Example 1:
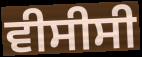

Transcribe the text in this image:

ਵੀਸੀਸੀ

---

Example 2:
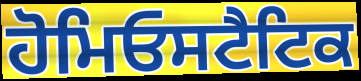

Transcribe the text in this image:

ਹੋਮਿਓਸਟੈਟਿਕ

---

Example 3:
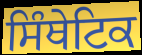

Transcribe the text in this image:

ਸਿੰਥੇਟਿਕ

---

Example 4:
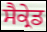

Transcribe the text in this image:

ਸੈਕ੍ਰੇਡ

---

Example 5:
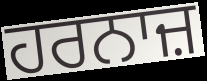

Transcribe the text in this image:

ਹਰਨਾਜ਼